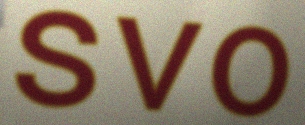
svo